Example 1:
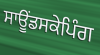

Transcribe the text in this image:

ਸਾਊਂਡਸਕੇਪਿੰਗ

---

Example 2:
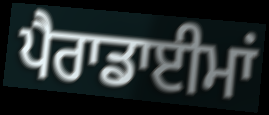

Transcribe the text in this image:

ਪੈਰਾਡਾਈਮਾਂ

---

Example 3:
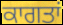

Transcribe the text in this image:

ਕਾਗਤਾਂ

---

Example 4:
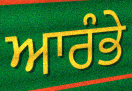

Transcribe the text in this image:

ਆਰੰਭੇ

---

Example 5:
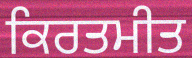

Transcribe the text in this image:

ਕਿਰਤਮੀਤ